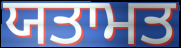
ਯਤਾਮਤ